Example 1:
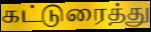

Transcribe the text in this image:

கட்டுரைத்து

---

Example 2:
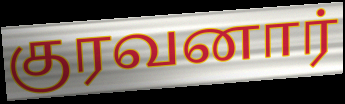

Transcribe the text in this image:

குரவனார்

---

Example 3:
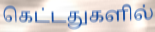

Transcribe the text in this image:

கெட்டதுகளில்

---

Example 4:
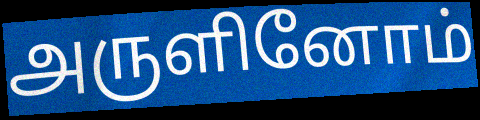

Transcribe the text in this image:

அருளினோம்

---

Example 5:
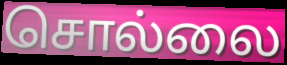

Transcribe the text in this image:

சொல்லை